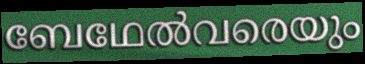
ബേഥേൽവരെയും